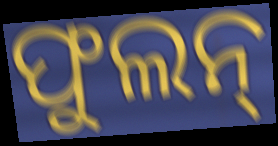
ଫୁଲନ୍